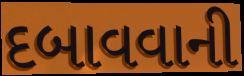
દબાવવાની